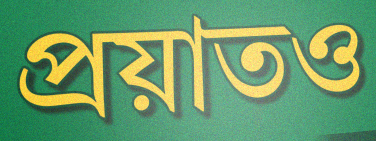
প্রয়াতও